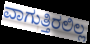
ವಾಗುತ್ತಿರಲಿಲ್ಲ